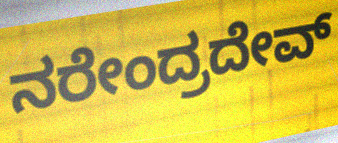
ನರೇಂದ್ರದೇವ್